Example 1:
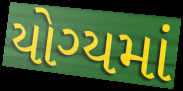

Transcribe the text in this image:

યોગ્યમાં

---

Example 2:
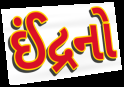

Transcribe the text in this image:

ઈંદ્રનો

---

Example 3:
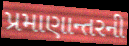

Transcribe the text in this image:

પ્રમાણાન્તરની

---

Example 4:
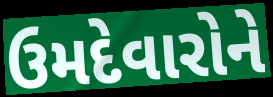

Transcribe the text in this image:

ઉમદેવારોને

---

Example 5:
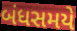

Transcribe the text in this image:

બંધસમયે